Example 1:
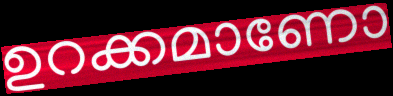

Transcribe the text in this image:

ഉറക്കമാണോ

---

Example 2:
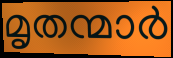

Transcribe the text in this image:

മൃതന്മാർ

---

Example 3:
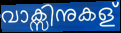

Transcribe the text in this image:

വാക്സിനുകള്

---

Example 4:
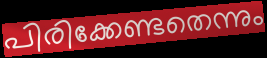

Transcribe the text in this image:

പിരിക്കേണ്ടതെന്നും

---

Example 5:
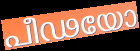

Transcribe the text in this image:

പീഢയോ